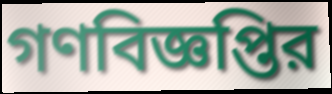
গণবিজ্ঞপ্তির